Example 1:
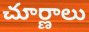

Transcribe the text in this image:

చూర్ణాలు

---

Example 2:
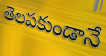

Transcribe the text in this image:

తెలపకుండానే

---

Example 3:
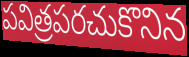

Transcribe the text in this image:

పవిత్రపరచుకొనిన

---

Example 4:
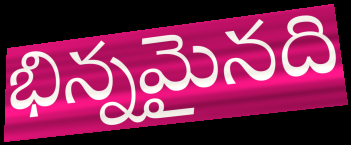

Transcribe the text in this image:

భిన్నమైనది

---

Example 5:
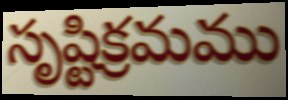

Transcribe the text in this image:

సృష్టిక్రమము